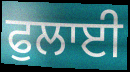
ਫੁਲਾਈ